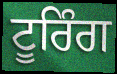
ਟੂਰਿੰਗ